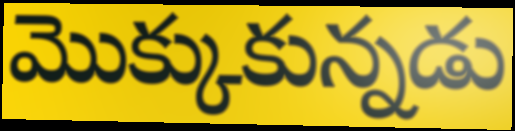
మొక్కుకున్నడు